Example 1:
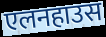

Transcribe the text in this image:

एलनहाउस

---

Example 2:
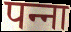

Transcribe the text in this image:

पन्‍ना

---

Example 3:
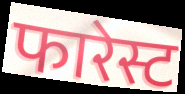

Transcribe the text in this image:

फारेस्‍ट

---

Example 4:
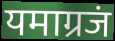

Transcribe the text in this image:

यमाग्रजं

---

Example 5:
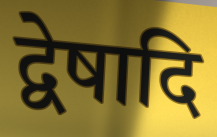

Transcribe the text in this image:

द्वेषादि